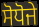
ਸੋਧੋਜੇ